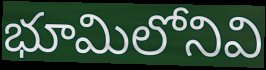
భూమిలోనివి